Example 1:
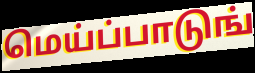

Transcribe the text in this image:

மெய்ப்பாடுங்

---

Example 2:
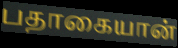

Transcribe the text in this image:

பதாகையான்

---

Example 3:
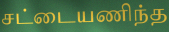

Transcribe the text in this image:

சட்டையணிந்த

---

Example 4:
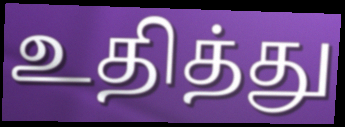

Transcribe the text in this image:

உதித்து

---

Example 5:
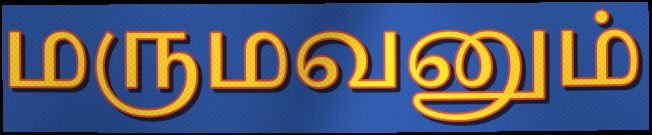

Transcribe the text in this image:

மருமவனும்